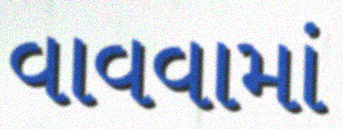
વાવવામાં